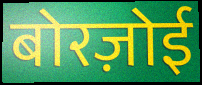
बोरज़ोई